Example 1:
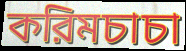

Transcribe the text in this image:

করিমচাচা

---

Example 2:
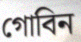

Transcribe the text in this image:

গোবিন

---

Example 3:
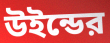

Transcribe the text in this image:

উইন্ডের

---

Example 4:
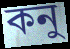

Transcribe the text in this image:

কনু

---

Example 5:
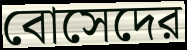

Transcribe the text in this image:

বোসেদের